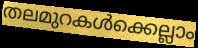
തലമുറകൾക്കെല്ലാം